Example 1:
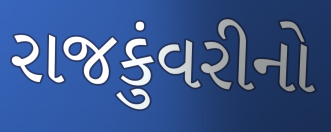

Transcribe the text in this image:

રાજકુંવરીનો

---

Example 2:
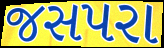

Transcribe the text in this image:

જસપરા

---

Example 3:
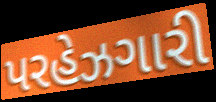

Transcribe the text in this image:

પરહેઝગારી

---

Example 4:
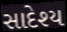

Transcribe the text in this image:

સાદેશ્ય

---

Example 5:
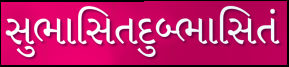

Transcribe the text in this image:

સુભાસિતદુબ્ભાસિતં